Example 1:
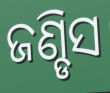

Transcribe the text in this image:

ଜଣ୍ଡିସ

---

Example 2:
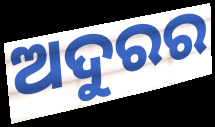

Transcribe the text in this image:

ଅଦୁରର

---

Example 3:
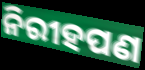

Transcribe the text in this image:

ନିରୀହପଣ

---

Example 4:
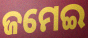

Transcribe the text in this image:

ଜମେଇ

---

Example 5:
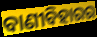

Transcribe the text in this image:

ବାଣୀବିହାରର